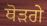
ਥੋੜਗੇ